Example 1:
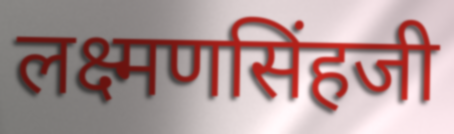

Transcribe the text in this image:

लक्ष्मणसिंहजी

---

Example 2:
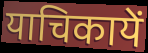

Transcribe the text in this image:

याचिकायें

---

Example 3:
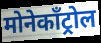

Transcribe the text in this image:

मोनेकॉंट्रोल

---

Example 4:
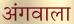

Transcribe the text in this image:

अंगवाला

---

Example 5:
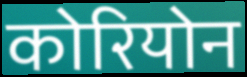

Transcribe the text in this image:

कोरियोन